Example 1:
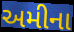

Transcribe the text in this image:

અમીના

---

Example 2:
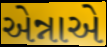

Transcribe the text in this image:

એન્નાએ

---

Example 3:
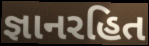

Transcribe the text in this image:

જ્ઞાનરહિત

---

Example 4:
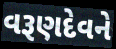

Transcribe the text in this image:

વરૂણદેવને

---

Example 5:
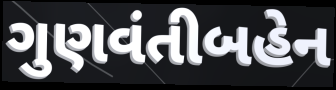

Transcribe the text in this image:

ગુણવંતીબહેન